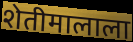
शेतीमालाला